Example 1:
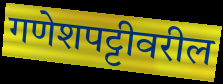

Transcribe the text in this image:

गणेशपट्टीवरील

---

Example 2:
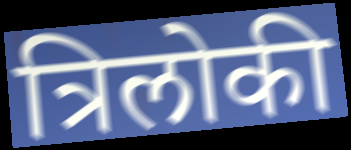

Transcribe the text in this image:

त्रिलोकी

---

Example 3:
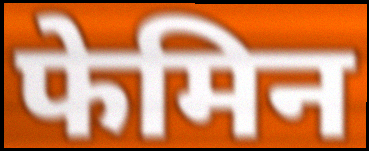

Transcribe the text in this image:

फेमिन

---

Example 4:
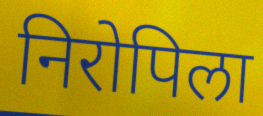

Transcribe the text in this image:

निरोपिला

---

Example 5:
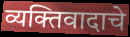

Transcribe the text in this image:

व्यक्तिवादाचे